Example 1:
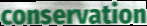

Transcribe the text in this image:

conservation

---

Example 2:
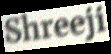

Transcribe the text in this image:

Shreeji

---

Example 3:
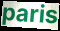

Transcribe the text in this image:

paris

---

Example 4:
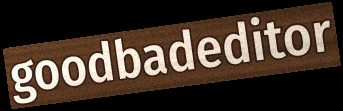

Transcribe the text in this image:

goodbadeditor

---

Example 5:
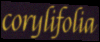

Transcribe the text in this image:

corylifolia